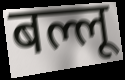
बल्लू